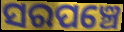
ସରପଞ୍ଚେ